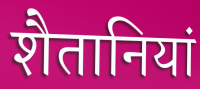
शैतानियां